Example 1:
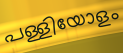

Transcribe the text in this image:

പള്ളിയോളം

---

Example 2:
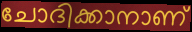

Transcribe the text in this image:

ചോദിക്കാനാണ്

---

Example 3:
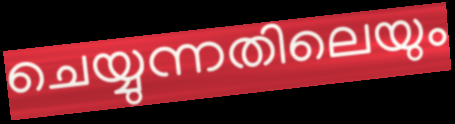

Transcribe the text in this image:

ചെയ്യുന്നതിലെയും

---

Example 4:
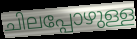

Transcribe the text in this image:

ചിലപ്പോഴുള്ള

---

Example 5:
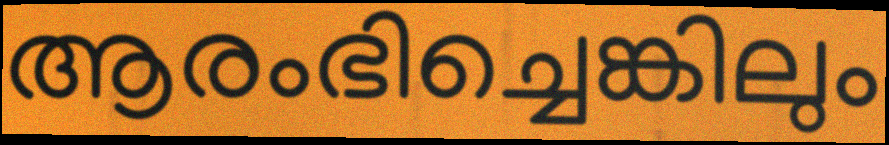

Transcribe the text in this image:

ആരംഭിച്ചെങ്കിലും